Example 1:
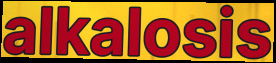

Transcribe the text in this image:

alkalosis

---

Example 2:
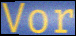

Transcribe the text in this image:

Vor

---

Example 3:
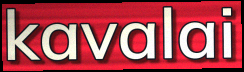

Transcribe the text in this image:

kavalai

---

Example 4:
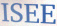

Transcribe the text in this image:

ISEE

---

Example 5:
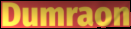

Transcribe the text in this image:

Dumraon